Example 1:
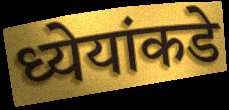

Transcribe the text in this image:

ध्येयांकडे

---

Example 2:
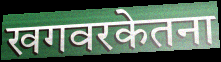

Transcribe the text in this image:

खगवरकेतना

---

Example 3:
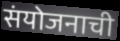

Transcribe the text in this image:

संयोजनाची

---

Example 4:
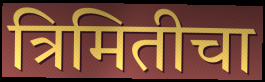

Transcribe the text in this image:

त्रिमितीचा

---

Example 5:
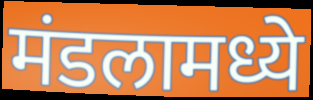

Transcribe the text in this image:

मंडलामध्ये